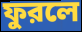
ফুরলে